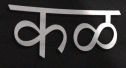
कळ